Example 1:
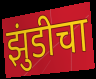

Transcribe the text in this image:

झुंडीचा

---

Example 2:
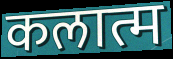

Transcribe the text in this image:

कलात्म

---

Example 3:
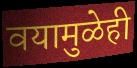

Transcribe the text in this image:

वयामुळेही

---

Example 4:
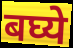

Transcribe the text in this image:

बघ्ये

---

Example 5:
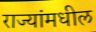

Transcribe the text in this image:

राज्यांमधील